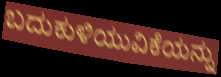
ಬದುಕುಳಿಯುವಿಕೆಯನ್ನು